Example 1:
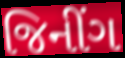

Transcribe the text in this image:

જિનીંગ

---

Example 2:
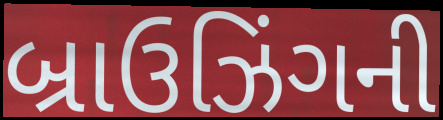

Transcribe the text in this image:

બ્રાઉઝિંગની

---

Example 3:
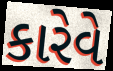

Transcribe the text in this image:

કારેવે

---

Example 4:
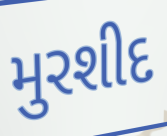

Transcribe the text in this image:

મુરશીદ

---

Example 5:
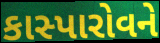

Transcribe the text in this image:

કાસ્પારોવને